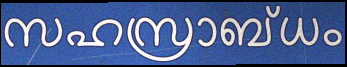
സഹസ്രാബ്ധം